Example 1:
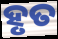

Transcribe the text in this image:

ହୃତ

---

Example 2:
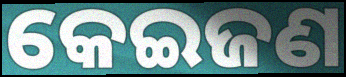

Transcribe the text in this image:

କେଇଜଣ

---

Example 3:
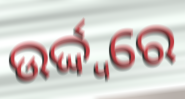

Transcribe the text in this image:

ଉର୍ଦ୍ଦ୍ୱରେ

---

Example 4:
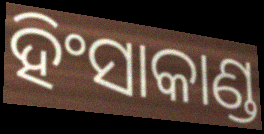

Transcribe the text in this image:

ହିଂସାକାଣ୍ଡ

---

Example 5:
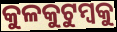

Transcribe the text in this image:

କୁଳକୁଟୁମ୍ବକୁ